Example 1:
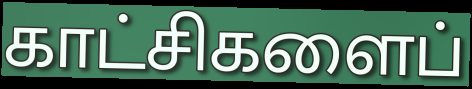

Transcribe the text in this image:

காட்சிகளைப்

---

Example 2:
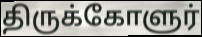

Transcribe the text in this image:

திருக்கோளுர்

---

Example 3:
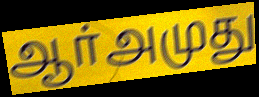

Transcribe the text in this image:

ஆர்அமுது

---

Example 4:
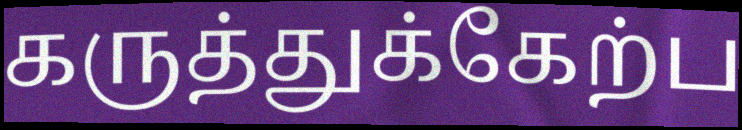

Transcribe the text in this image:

கருத்துக்கேற்ப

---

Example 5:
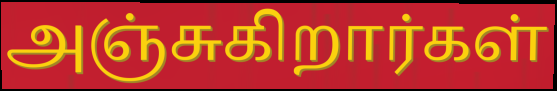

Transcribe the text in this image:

அஞ்சுகிறார்கள்